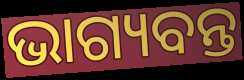
ଭାଗ୍ୟବନ୍ତ